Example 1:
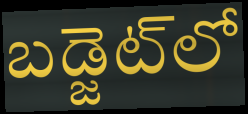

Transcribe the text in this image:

బడ్జెట్‌లో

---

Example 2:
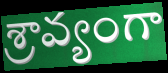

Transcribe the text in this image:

శ్రావ్యంగా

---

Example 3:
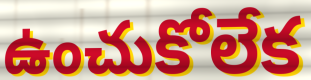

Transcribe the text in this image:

ఉంచుకోలేక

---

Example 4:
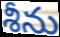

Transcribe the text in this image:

శీను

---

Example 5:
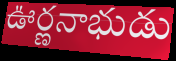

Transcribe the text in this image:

ఊర్ణనాభుడు